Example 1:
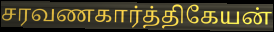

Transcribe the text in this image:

சரவணகார்த்திகேயன்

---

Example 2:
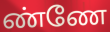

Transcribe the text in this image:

ண்ணே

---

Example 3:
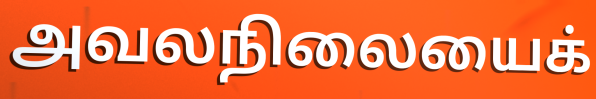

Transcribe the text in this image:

அவலநிலையைக்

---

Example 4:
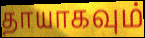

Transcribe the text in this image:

தாயாகவும்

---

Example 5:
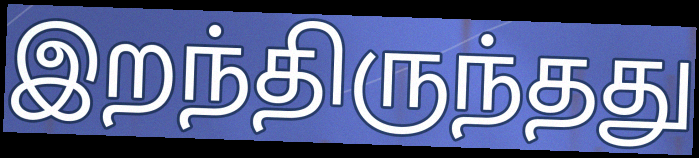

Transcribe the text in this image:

இறந்திருந்தது